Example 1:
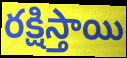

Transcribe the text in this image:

రక్షిస్తాయి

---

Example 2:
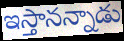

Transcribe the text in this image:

ఇస్తానన్నాడు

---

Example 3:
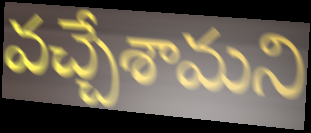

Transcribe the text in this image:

వచ్చేశామని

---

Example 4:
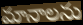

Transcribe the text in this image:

మానాలను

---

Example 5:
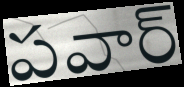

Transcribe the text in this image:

పవార్